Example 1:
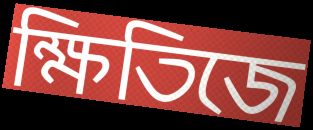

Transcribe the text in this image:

ক্ষিতিজে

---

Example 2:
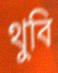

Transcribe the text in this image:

থুবি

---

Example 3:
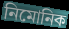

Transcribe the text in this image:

নিমোনিক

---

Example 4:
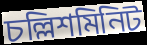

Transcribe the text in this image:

চল্লিশমিনিট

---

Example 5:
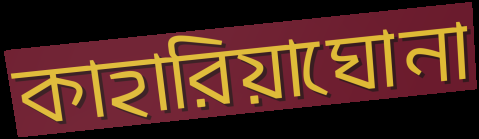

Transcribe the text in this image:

কাহারিয়াঘোনা